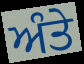
ਅੰਤੇ